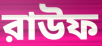
রাউফ